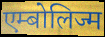
एम्बोलिज्म